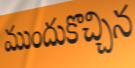
ముందుకొచ్చిన